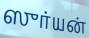
ஸுர்யன்